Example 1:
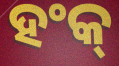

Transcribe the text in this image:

ହଂକ୍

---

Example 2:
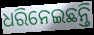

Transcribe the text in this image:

ଧରିନେଇଛନ୍ତି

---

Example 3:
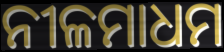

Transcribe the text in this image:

ନୀଳମାଧମ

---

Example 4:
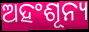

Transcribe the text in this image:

ଅହଂଶୂନ୍ୟ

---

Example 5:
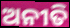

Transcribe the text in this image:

ଅନୀତି